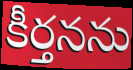
కీర్తనను